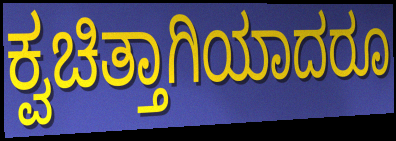
ಕ್ವಚಿತ್ತಾಗಿಯಾದರೂ